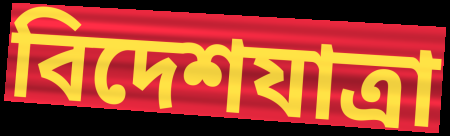
বিদেশযাত্রা